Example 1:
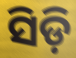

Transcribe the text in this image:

ସିଡ଼ି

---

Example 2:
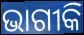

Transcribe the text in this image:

ଭାଗୀକି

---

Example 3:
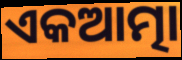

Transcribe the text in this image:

ଏକଆତ୍ମା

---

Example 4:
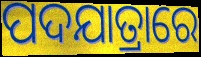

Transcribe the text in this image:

ପଦଯାତ୍ରାରେ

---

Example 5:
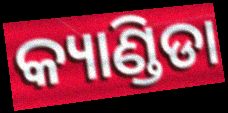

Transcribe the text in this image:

କ୍ୟାଣ୍ଡିଡା